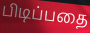
பிடிப்பதை